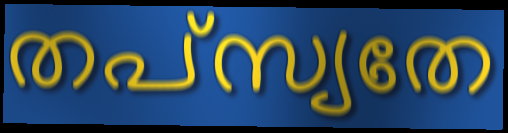
തപ്സ്യതേ